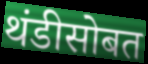
थंडीसोबत